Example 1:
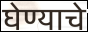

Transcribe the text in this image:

घेण्याचे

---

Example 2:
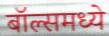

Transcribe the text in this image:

बॉल्समध्ये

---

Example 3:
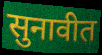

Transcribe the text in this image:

सुनावीत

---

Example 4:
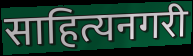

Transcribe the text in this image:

साहित्यनगरी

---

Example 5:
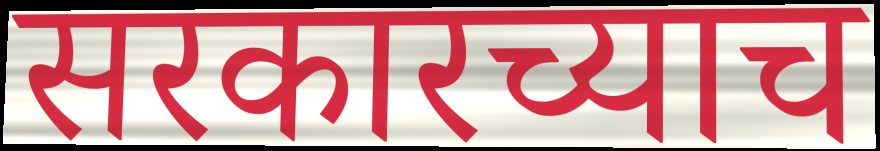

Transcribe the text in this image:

सरकारच्याच